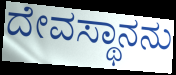
ದೇವಸ್ಥಾನನು